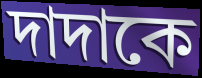
দাদাকে